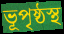
ভূপৃষ্ঠস্থ